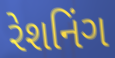
રેશનિંગ